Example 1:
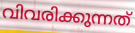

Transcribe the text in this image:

വിവരിക്കുന്നത്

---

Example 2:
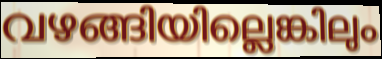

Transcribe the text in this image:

വഴങ്ങിയില്ലെങ്കിലും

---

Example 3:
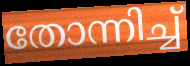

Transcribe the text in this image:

തോന്നിച്ച്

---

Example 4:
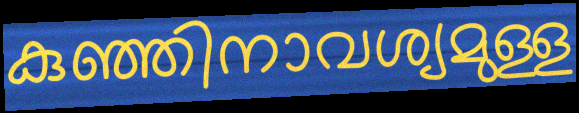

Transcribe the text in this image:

കുഞ്ഞിനാവശ്യമുള്ള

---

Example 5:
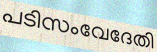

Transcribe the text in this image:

പടിസംവേദേതി